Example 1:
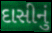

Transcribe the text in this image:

દાસીનું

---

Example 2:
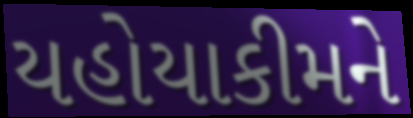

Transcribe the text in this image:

યહોયાકીમને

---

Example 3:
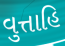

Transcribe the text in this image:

વુત્તાહિ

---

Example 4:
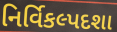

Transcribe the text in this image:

નિર્વિકલ્પદશા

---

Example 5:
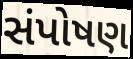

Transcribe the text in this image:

સંપોષણ